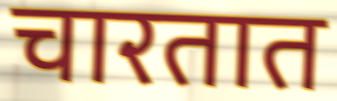
चारतात